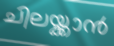
ചിലയ്ക്കാൻ